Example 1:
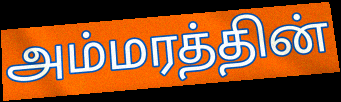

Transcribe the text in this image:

அம்மரத்தின்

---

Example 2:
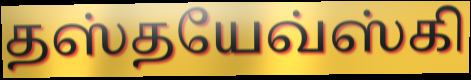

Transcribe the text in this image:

தஸ்தயேவ்ஸ்கி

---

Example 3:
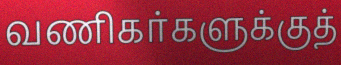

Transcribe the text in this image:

வணிகர்களுக்குத்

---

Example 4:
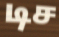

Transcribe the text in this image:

டிச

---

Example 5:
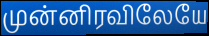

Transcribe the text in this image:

முன்னிரவிலேயே